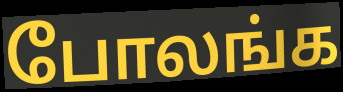
போலங்க